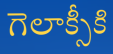
గెలాక్సీకి